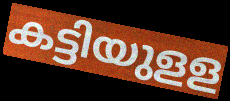
കട്ടിയുളള